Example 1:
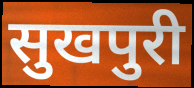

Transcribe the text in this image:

सुखपुरी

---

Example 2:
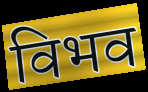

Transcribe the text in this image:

विभव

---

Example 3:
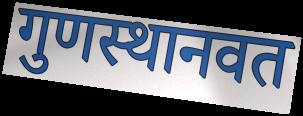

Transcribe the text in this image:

गुणस्थानवत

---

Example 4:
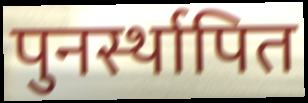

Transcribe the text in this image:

पुनर्स्थापित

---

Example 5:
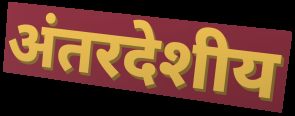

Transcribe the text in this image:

अंतरदेशीय